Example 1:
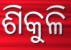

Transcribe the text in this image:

ଶିକୁଳି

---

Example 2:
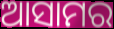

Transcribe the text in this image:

ଆସାମର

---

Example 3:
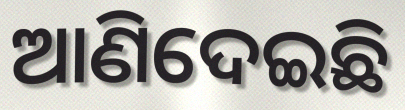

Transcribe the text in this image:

ଆଣିଦେଇଛି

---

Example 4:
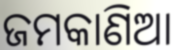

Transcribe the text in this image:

ଜମକାଣିଆ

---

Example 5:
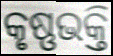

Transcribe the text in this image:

କୃଷ୍ଣଭକ୍ତି